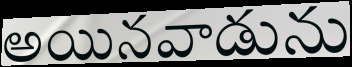
అయినవాడును